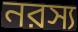
নরস্য